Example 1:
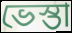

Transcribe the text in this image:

ভেস্তা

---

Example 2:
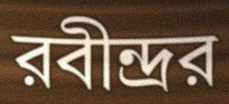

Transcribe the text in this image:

রবীন্দ্রর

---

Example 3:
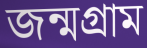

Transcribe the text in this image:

জন্মগ্রাম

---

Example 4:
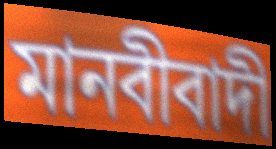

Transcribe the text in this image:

মানবীবাদী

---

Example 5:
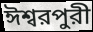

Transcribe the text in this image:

ঈশ্বরপুরী